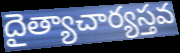
దైత్యాచార్యస్తవ